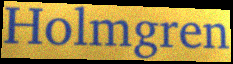
Holmgren